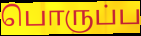
பொருப்ப